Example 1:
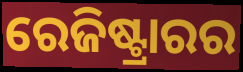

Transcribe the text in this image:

ରେଜିଷ୍ଟ୍ରାରର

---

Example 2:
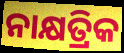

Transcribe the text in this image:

ନାକ୍ଷତ୍ରିକ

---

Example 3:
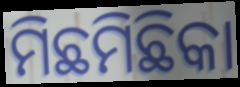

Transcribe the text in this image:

ମିଛମିଛିକା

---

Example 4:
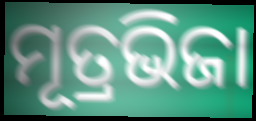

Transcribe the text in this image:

ମୂତ୍ରଭିଜା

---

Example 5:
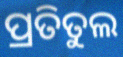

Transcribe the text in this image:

ପ୍ରତିତୁଲ